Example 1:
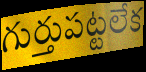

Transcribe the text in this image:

గుర్తుపట్టలేక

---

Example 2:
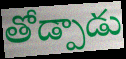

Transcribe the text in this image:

తోడ్పాడు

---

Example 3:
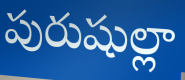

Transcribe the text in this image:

పురుషుల్లా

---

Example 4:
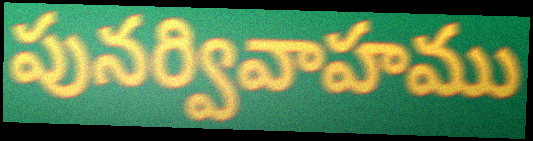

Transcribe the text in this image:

పునర్వివాహము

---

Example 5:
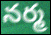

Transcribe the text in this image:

నర్మ